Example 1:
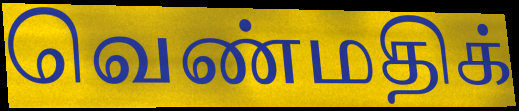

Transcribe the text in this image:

வெண்மதிக்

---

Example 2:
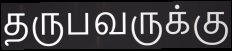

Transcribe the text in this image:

தருபவருக்கு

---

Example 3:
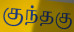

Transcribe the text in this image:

குந்தகு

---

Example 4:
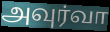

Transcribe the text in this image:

அவுர்வா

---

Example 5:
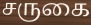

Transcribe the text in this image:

சருகை